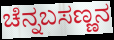
ಚೆನ್ನಬಸಣ್ಣನ